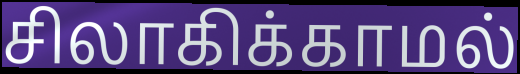
சிலாகிக்காமல்